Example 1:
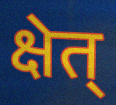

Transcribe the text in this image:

क्षेत्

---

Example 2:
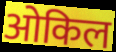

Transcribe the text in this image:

ओकिल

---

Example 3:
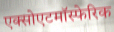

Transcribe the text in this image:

एक्सोएटमॉस्फेरिक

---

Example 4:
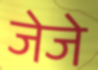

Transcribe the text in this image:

जेजे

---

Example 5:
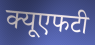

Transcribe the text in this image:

क्यूएफटी